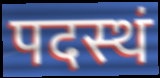
पदस्थं